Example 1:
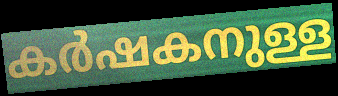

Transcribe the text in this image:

കർഷകനുള്ള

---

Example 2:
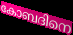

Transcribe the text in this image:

കോബദിനെ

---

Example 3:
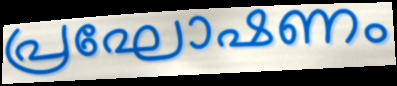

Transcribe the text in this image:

പ്രഘോഷണം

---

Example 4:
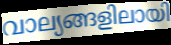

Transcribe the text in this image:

വാല്യങ്ങളിലായി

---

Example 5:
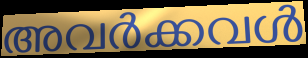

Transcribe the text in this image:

അവർക്കവൾ